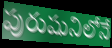
పురుషునిలోనే